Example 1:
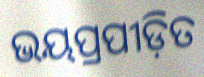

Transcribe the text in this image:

ଭୟପ୍ରପୀଡ଼ିତ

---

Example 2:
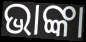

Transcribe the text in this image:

ଭାଙ୍କା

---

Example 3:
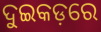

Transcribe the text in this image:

ଦୁଇକଡ଼ରେ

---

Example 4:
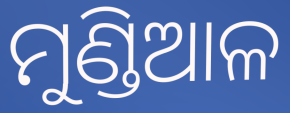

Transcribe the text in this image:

ମୁଣ୍ଡିଆଳ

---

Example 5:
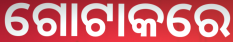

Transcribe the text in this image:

ଗୋଟାକରେ